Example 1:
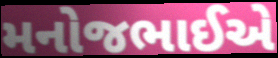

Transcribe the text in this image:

મનોજભાઈએ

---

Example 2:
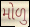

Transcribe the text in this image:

મોળુ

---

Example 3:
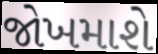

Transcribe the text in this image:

જોખમાશે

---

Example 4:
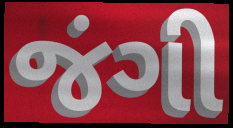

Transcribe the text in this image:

જંગી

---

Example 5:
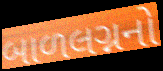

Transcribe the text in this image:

બાળલગ્નનો